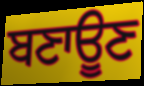
ਬਣਾਊਣ